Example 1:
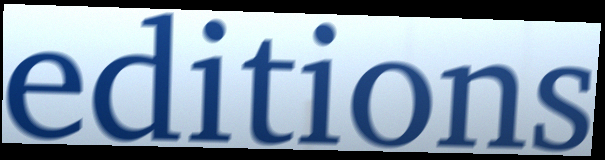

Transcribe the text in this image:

editions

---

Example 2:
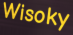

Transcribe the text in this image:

Wisoky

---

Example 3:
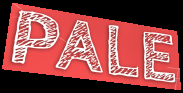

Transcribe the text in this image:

PALE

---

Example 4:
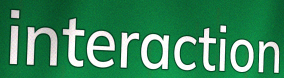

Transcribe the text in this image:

interaction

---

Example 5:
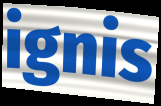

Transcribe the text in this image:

ignis